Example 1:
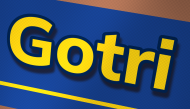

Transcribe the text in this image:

Gotri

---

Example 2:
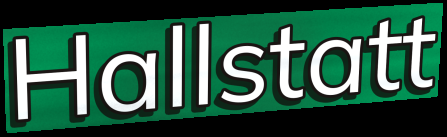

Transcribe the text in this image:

Hallstatt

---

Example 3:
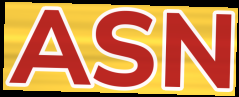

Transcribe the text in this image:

ASN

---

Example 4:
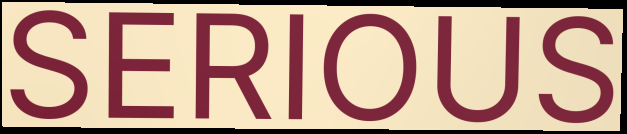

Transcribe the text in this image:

SERIOUS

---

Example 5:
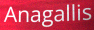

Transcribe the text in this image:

Anagallis